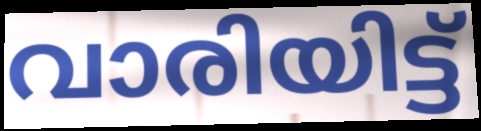
വാരിയിട്ട്